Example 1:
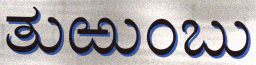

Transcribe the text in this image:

ತುಱುಂಬು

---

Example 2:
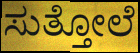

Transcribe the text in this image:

ಸುತ್ತೋಲೆ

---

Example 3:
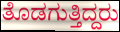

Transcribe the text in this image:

ತೊಡಗುತ್ತಿದ್ದರು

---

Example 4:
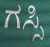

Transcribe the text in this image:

ಗಸ್ಸಿ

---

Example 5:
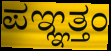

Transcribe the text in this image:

ಪಞ್ಞತ್ತಂ